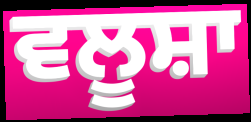
ਵਲੂਸ਼ਾ